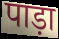
पाड़ा